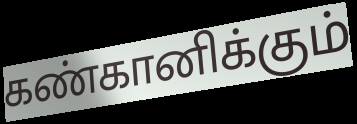
கண்கானிக்கும்